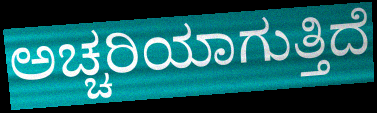
ಅಚ್ಚರಿಯಾಗುತ್ತಿದೆ